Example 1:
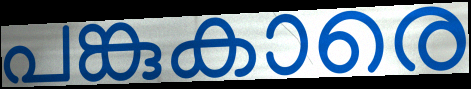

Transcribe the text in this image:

പങ്കുകാരെ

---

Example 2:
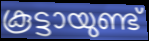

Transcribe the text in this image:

കൂട്ടായുണ്ട്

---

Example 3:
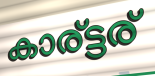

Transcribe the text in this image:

കാര്ട്ടര്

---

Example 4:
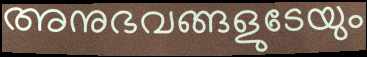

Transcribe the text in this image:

അനുഭവങ്ങളുടേയും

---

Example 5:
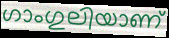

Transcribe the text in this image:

ഗാംഗുലിയാണ്